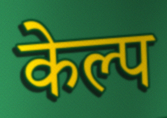
केल्प